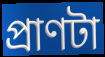
প্রাণটা